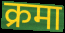
क्रमा